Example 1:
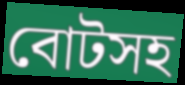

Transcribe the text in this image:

বোটসহ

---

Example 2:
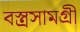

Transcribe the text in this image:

বস্ত্রসামগ্রী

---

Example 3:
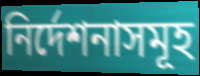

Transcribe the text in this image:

নির্দেশনাসমূহ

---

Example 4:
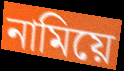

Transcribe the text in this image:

নামিয়ে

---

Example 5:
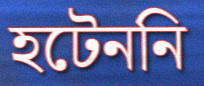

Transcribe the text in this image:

হটেননি